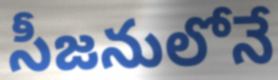
సీజనులోనే